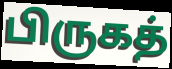
பிருகத்